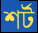
শর্ট